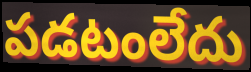
పడటంలేదు